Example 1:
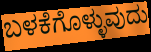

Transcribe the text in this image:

ಬಳಕೆಗೊಳ್ಳುವುದು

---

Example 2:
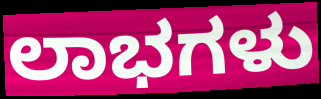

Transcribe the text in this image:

ಲಾಭಗಳು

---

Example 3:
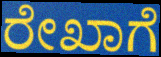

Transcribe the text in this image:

ರೇಖಾಗೆ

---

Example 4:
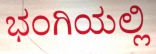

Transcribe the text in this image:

ಭಂಗಿಯಲ್ಲಿ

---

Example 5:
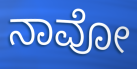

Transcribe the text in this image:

ನಾವೋ